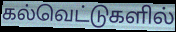
கல்வெட்டுகளில்